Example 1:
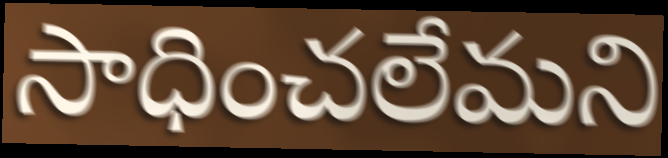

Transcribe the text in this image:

సాధించలేమని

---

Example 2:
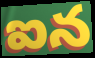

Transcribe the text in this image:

ఐన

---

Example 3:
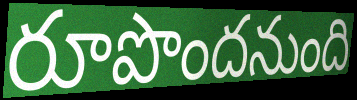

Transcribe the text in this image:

రూపొందనుంది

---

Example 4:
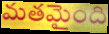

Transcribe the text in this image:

మతమైంది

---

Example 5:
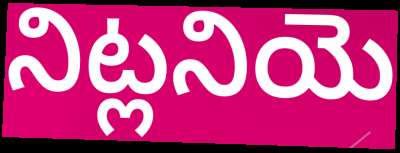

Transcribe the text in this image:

నిట్లనియె